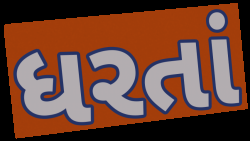
ધરતાં